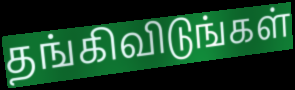
தங்கிவிடுங்கள்